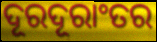
ଦୂରଦୂରାଂତର